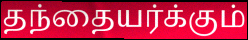
தந்தையர்க்கும்